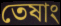
তেষাং